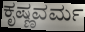
ಕೃಷ್ಣವರ್ಮ